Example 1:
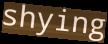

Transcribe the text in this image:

shying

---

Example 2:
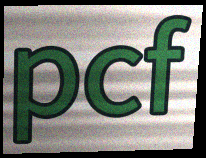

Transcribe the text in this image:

pcf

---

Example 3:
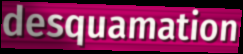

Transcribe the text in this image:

desquamation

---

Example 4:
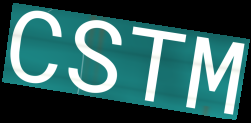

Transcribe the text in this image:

CSTM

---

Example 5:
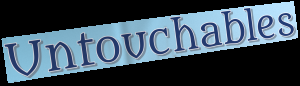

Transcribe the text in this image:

Untouchables